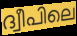
ദ്വീപിലെ